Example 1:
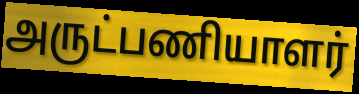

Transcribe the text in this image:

அருட்பணியாளர்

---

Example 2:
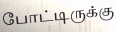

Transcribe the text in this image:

போட்டிருக்கு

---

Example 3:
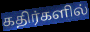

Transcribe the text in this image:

கதிர்களில்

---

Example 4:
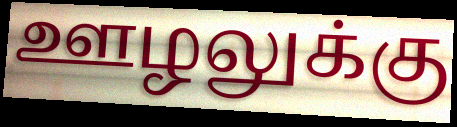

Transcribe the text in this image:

ஊழலுக்கு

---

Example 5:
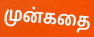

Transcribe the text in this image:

முன்கதை